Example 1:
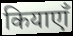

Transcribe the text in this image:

कियाएाँ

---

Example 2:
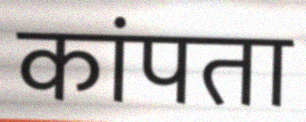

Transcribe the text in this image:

कांपता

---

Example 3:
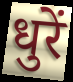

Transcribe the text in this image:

धुरें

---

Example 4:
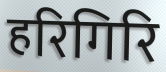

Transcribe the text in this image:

हरिगिरि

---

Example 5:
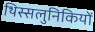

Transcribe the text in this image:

थिस्सलुनिकियों